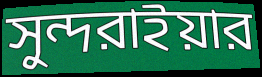
সুন্দরাইয়ার